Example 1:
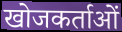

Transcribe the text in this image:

खोजकर्ताओं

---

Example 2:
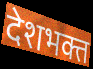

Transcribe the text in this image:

देशभक्त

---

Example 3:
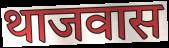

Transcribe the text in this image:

थाजवास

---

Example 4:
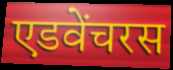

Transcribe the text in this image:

एडवेंचरस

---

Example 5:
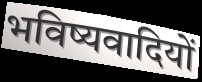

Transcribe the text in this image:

भविष्यवादियों